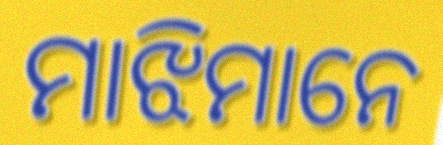
ମାଝିମାନେ